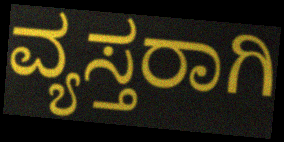
ವ್ಯಸ್ತರಾಗಿ